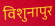
विशुनापुर